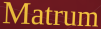
Matrum